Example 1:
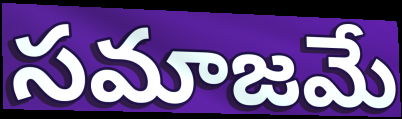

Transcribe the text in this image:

సమాజమే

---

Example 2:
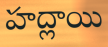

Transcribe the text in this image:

హద్లాయి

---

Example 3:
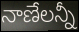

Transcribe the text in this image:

నాణేలన్నీ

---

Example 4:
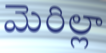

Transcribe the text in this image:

మెరిల్లా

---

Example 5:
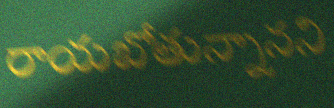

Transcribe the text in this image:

రాయబోతున్నానని